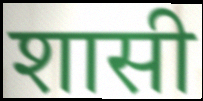
शासी